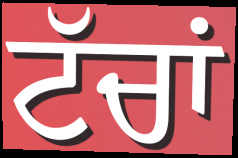
ਟੱਚਾਂ